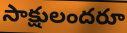
సాక్షులందరూ